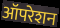
ऑपरेशन